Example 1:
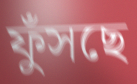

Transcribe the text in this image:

ফুঁসছে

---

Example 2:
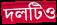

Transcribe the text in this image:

দলটিও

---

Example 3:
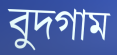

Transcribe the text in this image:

বুদগাম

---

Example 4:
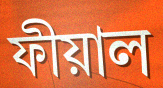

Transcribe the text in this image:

ফীয়াল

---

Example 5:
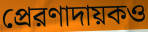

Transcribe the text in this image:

প্রেরণাদায়কও